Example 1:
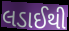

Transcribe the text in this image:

લડાઈથી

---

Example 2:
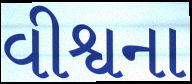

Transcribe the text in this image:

વીશ્વના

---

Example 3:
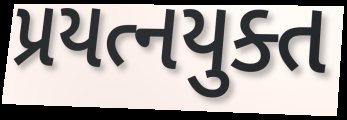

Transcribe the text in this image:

પ્રયત્નયુક્ત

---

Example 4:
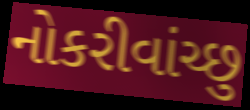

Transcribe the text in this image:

નોકરીવાંચ્છુ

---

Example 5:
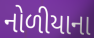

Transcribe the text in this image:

નોળીયાના